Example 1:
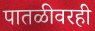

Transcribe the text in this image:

पातळीवरही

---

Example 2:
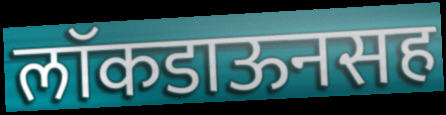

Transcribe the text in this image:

लॉकडाऊनसह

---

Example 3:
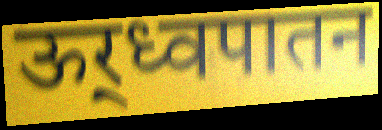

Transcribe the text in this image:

ऊर्ध्वपातन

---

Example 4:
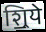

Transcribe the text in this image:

श्रि॒ये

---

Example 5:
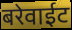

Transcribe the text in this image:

बरेवाईट